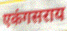
एकंगसराय